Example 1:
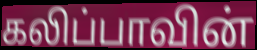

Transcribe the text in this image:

கலிப்பாவின்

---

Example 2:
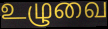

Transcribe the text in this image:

உழுவை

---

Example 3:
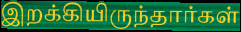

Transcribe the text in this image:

இறக்கியிருந்தார்கள்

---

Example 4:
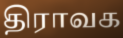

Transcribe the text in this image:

திராவக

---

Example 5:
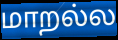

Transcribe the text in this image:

மாறல்ல